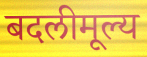
बदलीमूल्य